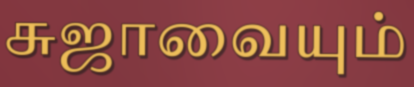
சுஜாவையும்